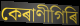
কেৰাণীগিৰি